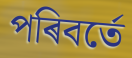
পৰিবৰ্তে